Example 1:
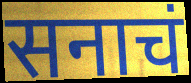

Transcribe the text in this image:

सनाचं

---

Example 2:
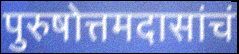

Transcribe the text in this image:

पुरुषोत्तमदासांचं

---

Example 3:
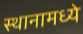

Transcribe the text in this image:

स्थानामध्ये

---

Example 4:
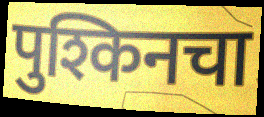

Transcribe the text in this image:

पुश्किनचा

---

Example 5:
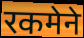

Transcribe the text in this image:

रकमेने